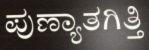
ಪುಣ್ಯಾತಗಿತ್ತಿ